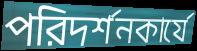
পরিদর্শনকার্যে